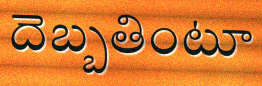
దెబ్బతింటూ